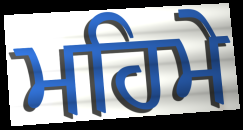
ਮਹਿਮੇ